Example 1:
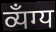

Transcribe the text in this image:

व्यँग्य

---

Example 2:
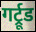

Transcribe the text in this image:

गर्ट्रूड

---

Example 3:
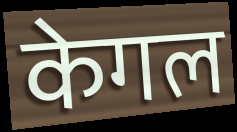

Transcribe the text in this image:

केगल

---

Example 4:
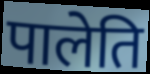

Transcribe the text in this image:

पालेति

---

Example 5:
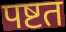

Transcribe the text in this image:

पष्टत